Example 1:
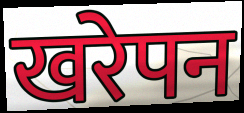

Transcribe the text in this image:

खरेपन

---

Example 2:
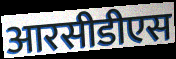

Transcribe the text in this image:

आरसीडीएस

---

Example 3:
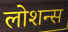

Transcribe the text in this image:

लोशन्स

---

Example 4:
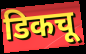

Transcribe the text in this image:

डिकचू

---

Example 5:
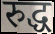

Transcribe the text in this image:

रुद्ध